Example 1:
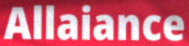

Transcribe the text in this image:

Allaiance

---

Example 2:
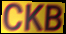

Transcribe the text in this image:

CKB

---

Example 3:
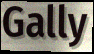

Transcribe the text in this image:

Gally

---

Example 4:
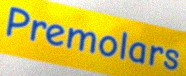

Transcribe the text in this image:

Premolars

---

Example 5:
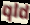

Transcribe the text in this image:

qld